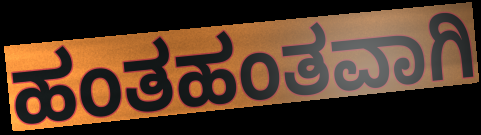
ಹಂತಹಂತವಾಗಿ